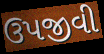
ઉપજીવી